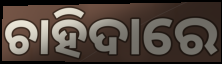
ଚାହିଦାରେ